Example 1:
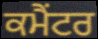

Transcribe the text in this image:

ਕਮੈਂਟਰ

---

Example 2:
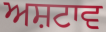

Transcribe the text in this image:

ਅਸ਼ਟਾਵ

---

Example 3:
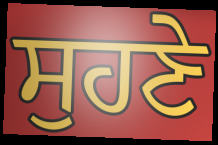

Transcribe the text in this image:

ਸੁਹਣੇ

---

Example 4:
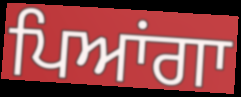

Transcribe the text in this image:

ਪਿਆਂਗਾ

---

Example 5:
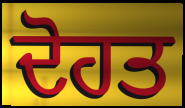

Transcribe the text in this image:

ਦੋਹਤ